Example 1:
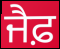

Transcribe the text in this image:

ਜੈਫ਼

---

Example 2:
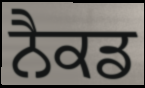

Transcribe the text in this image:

ਨੈਕਡ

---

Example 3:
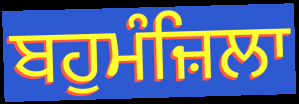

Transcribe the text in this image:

ਬਹੁਮੰਜ਼ਿਲਾ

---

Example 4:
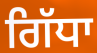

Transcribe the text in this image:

ਗਿੱਧਾ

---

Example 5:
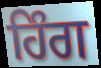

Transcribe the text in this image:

ਹਿੰਗ